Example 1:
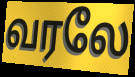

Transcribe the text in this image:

வரலே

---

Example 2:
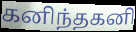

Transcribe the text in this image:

கனிந்தகனி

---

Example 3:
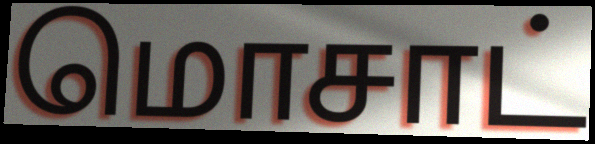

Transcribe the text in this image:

மொசாட்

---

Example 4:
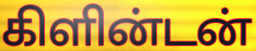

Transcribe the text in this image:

கிளின்டன்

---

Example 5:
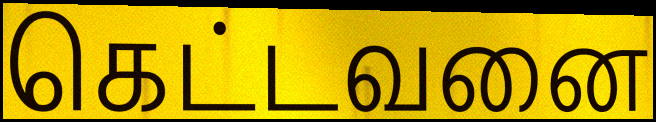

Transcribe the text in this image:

கெட்டவனை